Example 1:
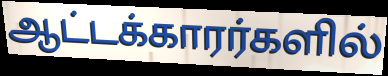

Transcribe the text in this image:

ஆட்டக்காரர்களில்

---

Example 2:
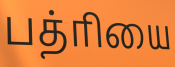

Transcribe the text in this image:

பத்ரியை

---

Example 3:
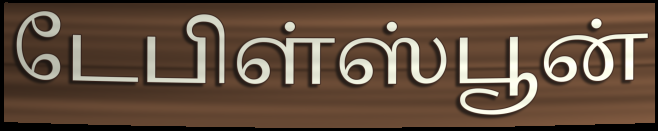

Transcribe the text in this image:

டேபிள்ஸ்பூன்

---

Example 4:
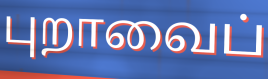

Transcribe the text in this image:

புறாவைப்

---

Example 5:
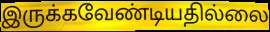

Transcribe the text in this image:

இருக்கவேண்டியதில்லை